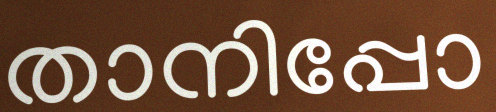
താനിപ്പോ